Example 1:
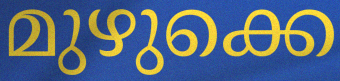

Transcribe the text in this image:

മുഴുക്കെ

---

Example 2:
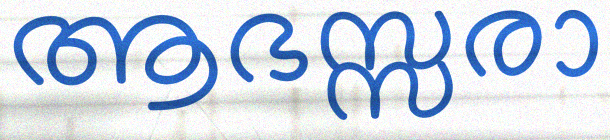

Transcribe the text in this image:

ആഭസ്സരാ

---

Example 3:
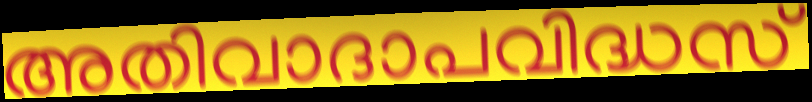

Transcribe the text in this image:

അതിവാദാപവിദ്ധസ്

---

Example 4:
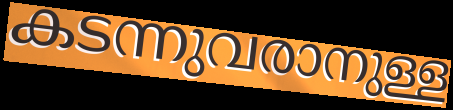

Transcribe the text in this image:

കടന്നുവരാനുള്ള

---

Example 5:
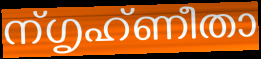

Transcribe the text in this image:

ന്ഗൃഹ്ണീതാ